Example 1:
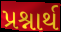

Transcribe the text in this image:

પ્રશ્નાર્થ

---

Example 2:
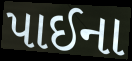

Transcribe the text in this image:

પાઈના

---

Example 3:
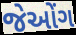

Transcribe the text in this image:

જેઓંગ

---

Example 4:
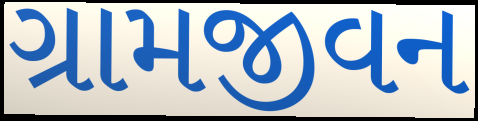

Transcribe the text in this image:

ગ્રામજીવન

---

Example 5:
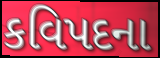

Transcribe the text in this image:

કવિપદના